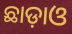
ଛାଡ଼ାଓ